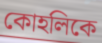
কোহলিকে